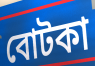
বোটকা